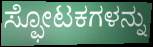
ಸ್ಫೋಟಕಗಳನ್ನು